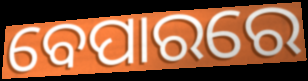
ବେପାରରେ